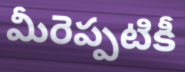
మీరెప్పటికీ